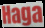
Haga